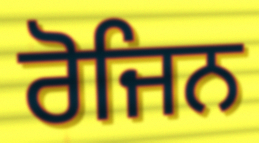
ਰੋਜਿਨ